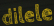
dilele